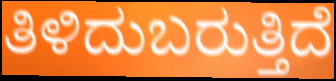
ತಿಳಿದುಬರುತ್ತಿದೆ